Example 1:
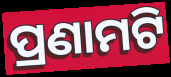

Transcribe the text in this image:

ପ୍ରଣାମଟି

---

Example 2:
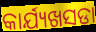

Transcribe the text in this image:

କାର୍ଯ୍ୟଖସଡା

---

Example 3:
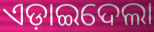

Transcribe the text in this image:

ଏଡ଼ାଇଦେଲା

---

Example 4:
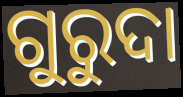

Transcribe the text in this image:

ଗୁରୁଦା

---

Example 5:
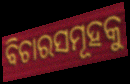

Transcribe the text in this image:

ବିଚାରସମୂହକୁ